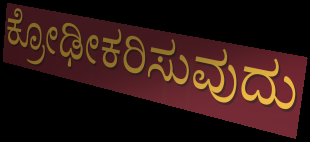
ಕ್ರೋಢೀಕರಿಸುವುದು